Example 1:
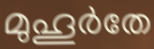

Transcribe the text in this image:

മുഹൂർതേ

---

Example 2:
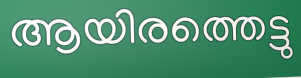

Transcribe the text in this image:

ആയിരത്തെട്ടു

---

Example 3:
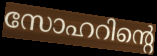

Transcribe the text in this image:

സോഹറിന്റെ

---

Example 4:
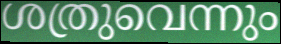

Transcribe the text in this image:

ശത്രുവെന്നും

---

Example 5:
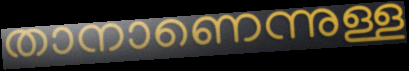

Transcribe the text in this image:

താനാണെന്നുള്ള